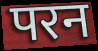
परन